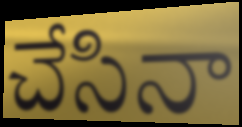
చేసినా